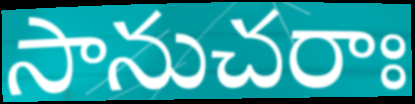
సానుచరాః